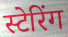
स्टेरिंग